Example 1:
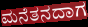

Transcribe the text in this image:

ಮನೆತನದಾಗ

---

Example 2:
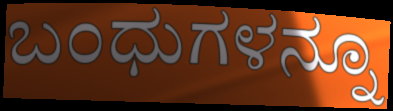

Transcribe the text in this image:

ಬಂಧುಗಳನ್ನೂ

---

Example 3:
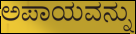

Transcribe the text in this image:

ಅಪಾಯವನ್ನು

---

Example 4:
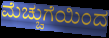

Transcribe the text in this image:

ಮೆಚ್ಚುಗೆಯಿಂದ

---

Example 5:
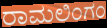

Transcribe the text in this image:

ರಾಮಲಿಂಗಂ